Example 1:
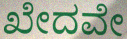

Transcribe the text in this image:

ಖೇದವೇ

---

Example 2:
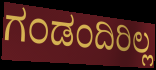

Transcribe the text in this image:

ಗಂಡಂದಿರಿಲ್ಲ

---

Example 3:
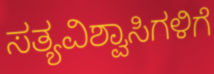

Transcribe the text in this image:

ಸತ್ಯವಿಶ್ವಾಸಿಗಳಿಗೆ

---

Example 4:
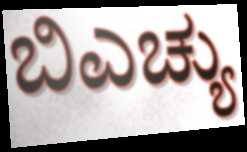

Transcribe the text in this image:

ಬಿಎಚ್ಯು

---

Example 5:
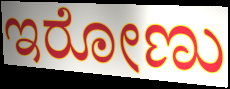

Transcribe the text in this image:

ಇರೋಣು